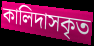
কালিদাসকৃত